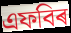
এফবিৰ